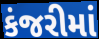
કંજરીમાં